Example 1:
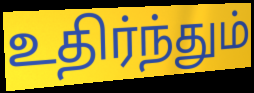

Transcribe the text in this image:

உதிர்ந்தும்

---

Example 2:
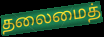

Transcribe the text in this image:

தலைமைத்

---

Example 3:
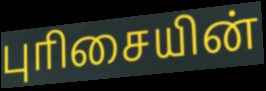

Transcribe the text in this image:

புரிசையின்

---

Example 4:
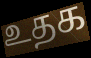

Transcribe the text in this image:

உதக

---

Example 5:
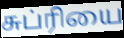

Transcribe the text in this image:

சுப்ரியை